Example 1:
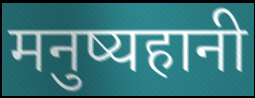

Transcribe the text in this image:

मनुष्यहानी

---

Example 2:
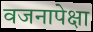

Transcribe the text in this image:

वजनापेक्षा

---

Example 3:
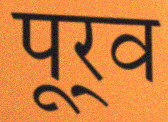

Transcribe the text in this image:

पूर्व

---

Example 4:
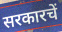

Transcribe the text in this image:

सरकारचें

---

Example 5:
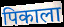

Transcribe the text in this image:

पिकाला